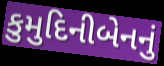
કુમુદિનીબેનનું